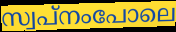
സ്വപ്നംപോലെ